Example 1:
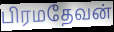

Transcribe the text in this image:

பிரமதேவன்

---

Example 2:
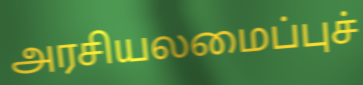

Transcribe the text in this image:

அரசியலமைப்புச்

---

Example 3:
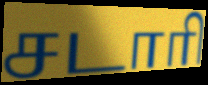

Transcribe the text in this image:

சடாரி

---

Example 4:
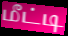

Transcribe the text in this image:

மீட்டி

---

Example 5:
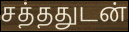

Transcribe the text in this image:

சத்ததுடன்